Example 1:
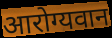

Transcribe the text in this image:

आरोग्यवान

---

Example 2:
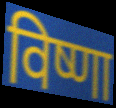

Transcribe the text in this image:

विष्णा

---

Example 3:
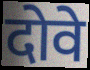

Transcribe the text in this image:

दोवे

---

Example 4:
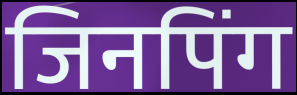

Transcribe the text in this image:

जिनपिंग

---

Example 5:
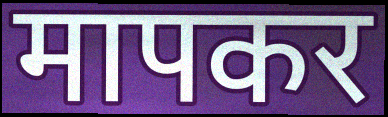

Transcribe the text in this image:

मापकर